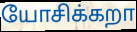
யோசிக்கறா